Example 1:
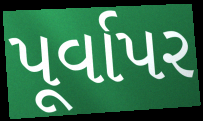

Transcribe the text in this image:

પૂર્વાપર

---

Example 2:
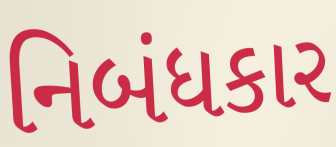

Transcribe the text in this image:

નિબંધકાર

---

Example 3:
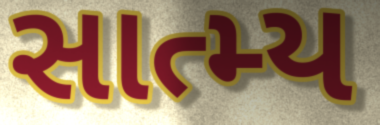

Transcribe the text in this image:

સાત્મ્ય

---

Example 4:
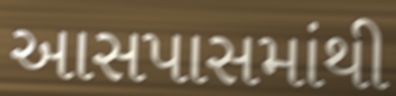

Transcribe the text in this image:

આસપાસમાંથી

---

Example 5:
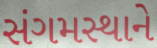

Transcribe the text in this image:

સંગમસ્થાને